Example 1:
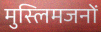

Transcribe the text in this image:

मुस्लिमजनों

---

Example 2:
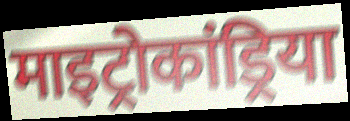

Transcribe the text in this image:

माइट्रोकांड्रिया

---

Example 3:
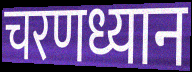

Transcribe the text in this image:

चरणध्यान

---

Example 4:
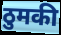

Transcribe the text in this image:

ठुमकी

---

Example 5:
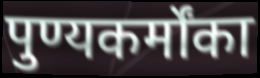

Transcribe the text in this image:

पुण्यकर्मोंका